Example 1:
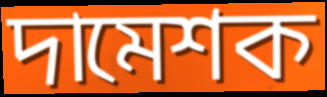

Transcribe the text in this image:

দামেশক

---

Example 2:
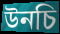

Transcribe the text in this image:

উনচি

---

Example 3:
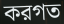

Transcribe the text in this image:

করগত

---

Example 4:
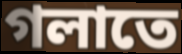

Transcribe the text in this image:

গলাতে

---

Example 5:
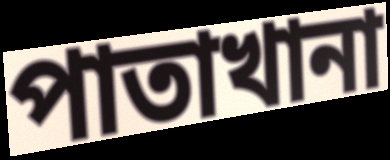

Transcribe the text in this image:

পাতাখানা